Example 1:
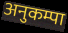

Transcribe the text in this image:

अनुकम्‍पा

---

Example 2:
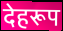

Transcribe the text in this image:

देहरूप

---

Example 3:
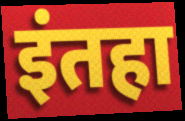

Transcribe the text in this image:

इंतहा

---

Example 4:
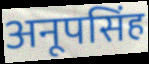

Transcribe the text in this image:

अनूपसिंह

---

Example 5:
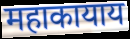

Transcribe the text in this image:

महाकायाय